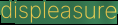
displeasure